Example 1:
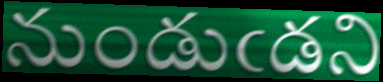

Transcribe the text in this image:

నుండుఁడని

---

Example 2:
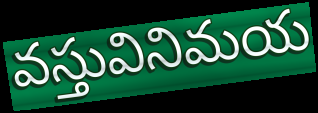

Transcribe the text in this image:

వస్తువినిమయ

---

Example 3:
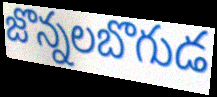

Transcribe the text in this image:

జొన్నలబొగుడ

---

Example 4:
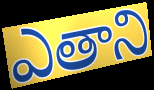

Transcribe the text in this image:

ఎతాని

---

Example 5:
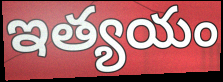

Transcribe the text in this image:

ఇత్యయం